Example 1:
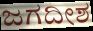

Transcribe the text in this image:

ಜಗದೀಶ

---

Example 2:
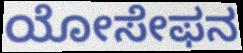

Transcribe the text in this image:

ಯೋಸೇಫನ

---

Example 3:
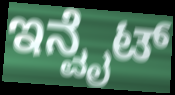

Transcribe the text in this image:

ಇನ್ವೈಟ್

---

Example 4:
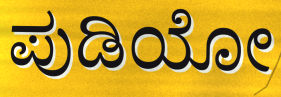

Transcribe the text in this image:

ಪುಡಿಯೋ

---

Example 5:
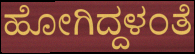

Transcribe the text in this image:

ಹೋಗಿದ್ದಳಂತೆ